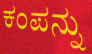
ಕಂಪನ್ನು